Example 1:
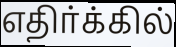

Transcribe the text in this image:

எதிர்க்கில்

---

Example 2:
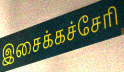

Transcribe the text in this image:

இசைக்கச்சேரி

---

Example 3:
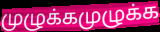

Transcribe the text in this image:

முழுக்கமுழுக்க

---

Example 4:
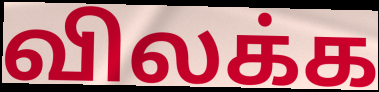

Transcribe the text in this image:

விலக்க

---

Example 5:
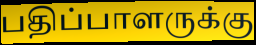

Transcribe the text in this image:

பதிப்பாளருக்கு